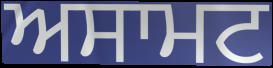
ਅਸਾਮਟ